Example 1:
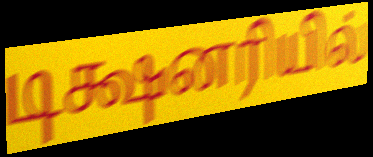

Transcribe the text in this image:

டிக்ஷனரியில்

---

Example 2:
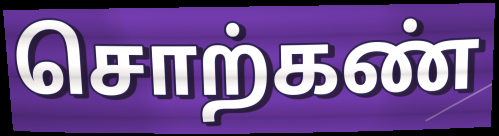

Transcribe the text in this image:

சொற்கண்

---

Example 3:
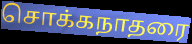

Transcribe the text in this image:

சொக்கநாதரை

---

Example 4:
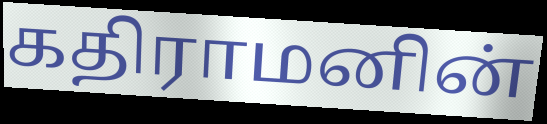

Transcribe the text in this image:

கதிராமனின்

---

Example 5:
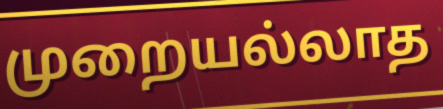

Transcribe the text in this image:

முறையல்லாத